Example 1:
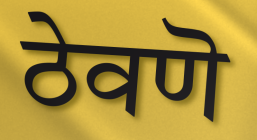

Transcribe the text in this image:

ठेवणॆ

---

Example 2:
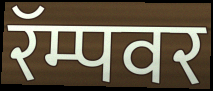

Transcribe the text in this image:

रॅम्पवर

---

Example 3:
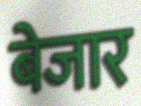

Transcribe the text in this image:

बेजार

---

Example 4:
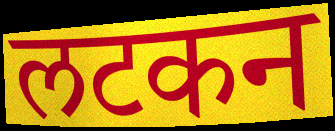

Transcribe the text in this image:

लटकन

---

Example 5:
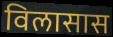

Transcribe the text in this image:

विलासास